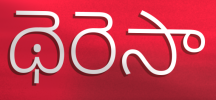
థెరెసా